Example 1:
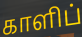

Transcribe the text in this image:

காளிப்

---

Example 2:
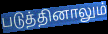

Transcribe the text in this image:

படுத்தினாலும்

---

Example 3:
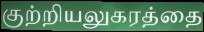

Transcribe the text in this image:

குற்றியலுகரத்தை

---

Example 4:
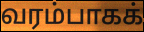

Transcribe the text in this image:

வரம்பாகக்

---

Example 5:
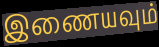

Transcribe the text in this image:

இணையவும்